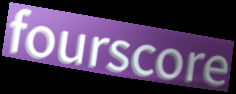
fourscore